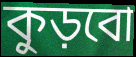
কুড়বো